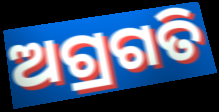
ଅଗ୍ରଗତି